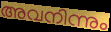
അവനിന്നും